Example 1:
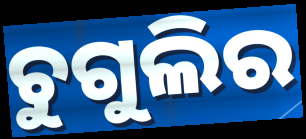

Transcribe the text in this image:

ଚୁଗୁଲିର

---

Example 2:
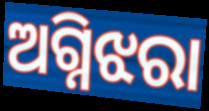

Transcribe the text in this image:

ଅଗ୍ନିଝରା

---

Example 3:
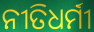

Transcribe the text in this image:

ନୀତିଧର୍ମୀ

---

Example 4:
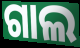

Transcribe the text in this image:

ଗାଲ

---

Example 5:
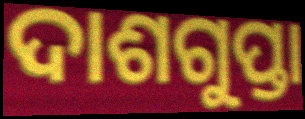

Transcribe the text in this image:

ଦାଶଗୁପ୍ତା